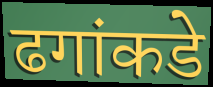
ढगांकडे